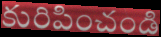
కురిపించండి